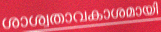
ശാശ്വതാവകാശമായി